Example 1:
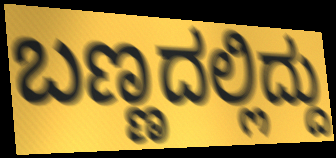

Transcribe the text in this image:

ಬಣ್ಣದಲ್ಲಿದ್ದು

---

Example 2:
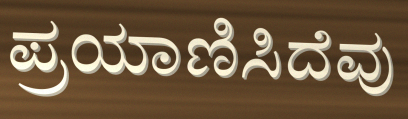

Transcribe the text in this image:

ಪ್ರಯಾಣಿಸಿದೆವು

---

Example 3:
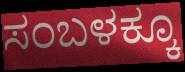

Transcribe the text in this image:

ಸಂಬಳಕ್ಕೂ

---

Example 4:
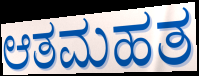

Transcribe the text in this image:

ಆತಮಹತ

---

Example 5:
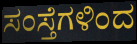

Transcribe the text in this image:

ಸಂಸ್ತೆಗಳಿಂದ